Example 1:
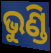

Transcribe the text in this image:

ଭୁଣ୍ଡି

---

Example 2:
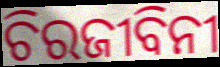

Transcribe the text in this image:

ଚିରଜୀବିନୀ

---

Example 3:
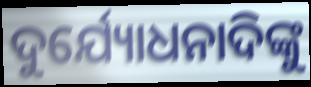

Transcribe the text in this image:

ଦୁର୍ଯ୍ୟୋଧନାଦିଙ୍କୁ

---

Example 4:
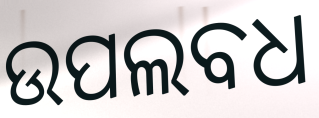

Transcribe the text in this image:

ଉପଲବଧ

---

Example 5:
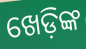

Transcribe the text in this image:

ଖେଡ଼ିଙ୍କ